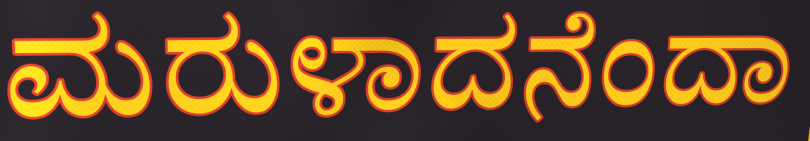
ಮರುಳಾದನೆಂದಾ